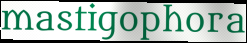
mastigophora